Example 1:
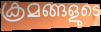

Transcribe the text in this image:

ക്രമങ്ങളുടെ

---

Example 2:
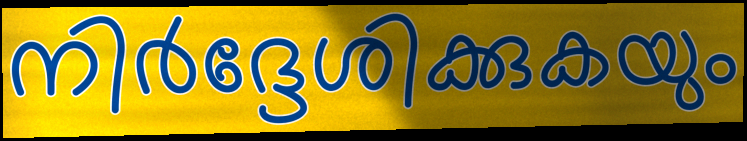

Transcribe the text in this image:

നിർദ്ദേശിക്കുകയും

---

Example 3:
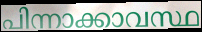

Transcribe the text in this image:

പിന്നാക്കാവസ്ഥ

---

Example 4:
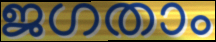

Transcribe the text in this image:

ജഗതാം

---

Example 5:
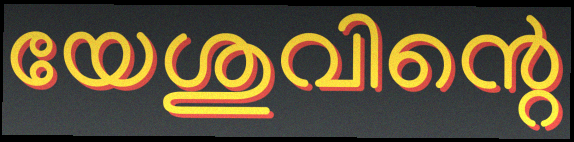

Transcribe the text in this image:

യേശുവിന്റെ